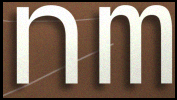
nm